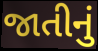
જાતીનું